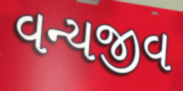
વન્યજીવ